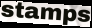
stamps